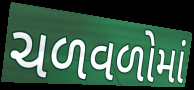
ચળવળોમાં